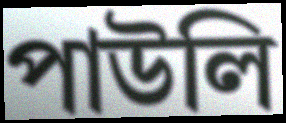
পাউলি